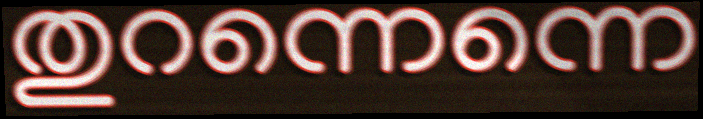
തുറന്നെന്നെ